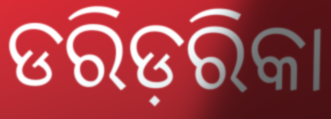
ଡରିଡ଼ରିକା